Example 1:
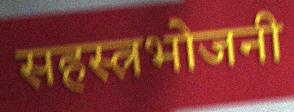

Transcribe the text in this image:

सहस्त्रभोजनी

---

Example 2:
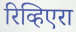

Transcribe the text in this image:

रिव्हिएरा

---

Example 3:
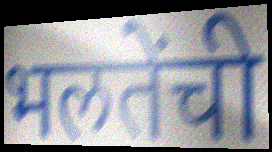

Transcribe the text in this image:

भलतेंची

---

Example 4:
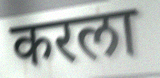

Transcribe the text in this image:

करला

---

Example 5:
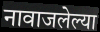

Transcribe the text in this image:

नावाजलेल्या